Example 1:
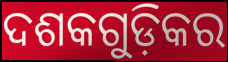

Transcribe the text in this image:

ଦଶକଗୁଡ଼ିକର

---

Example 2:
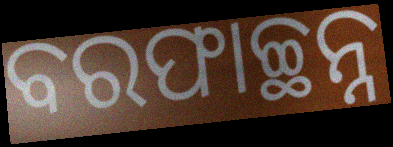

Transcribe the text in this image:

ବରଫାଚ୍ଛନ୍ନ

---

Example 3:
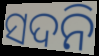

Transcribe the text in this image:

ସଦନି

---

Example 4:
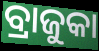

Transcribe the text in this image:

ବ୍ରାଜୁକା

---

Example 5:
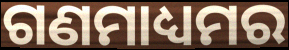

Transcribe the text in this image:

ଗଣମାଧ୍ୟମର